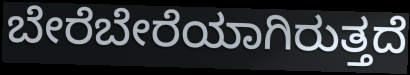
ಬೇರೆಬೇರೆಯಾಗಿರುತ್ತದೆ